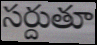
సర్దుతూ